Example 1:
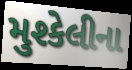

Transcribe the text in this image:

મુશ્કેલીના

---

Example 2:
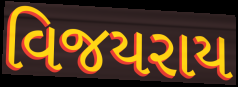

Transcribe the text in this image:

વિજયરાય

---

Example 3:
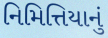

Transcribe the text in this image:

નિમિત્તિયાનું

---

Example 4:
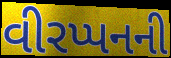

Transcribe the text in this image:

વીરપ્પનની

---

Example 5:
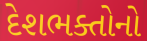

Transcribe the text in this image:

દેશભક્તોનો